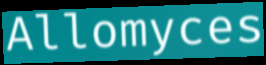
Allomyces